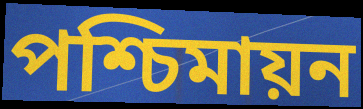
পশ্চিমায়ন